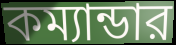
কম্যান্ডার